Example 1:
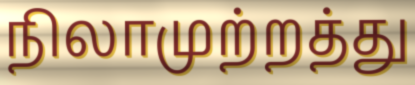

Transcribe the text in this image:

நிலாமுற்றத்து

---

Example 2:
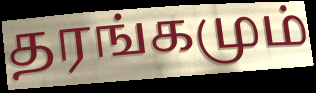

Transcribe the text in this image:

தரங்கமும்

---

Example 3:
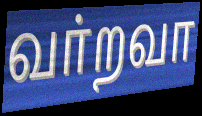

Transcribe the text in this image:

வர்றவா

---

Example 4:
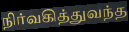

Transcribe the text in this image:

நிர்வகித்துவந்த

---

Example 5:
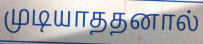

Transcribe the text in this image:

முடியாததனால்